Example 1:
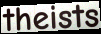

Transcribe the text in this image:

theists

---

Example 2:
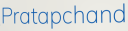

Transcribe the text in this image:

Pratapchand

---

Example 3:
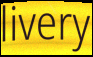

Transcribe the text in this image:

livery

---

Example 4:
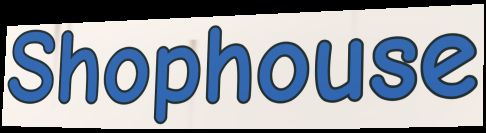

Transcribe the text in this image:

Shophouse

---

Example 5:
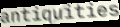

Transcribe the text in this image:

antiquities